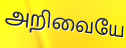
அறிவையே